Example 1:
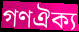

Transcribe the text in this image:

গণঐক্য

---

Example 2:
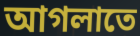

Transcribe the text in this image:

আগলাতে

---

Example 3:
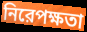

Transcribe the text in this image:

নিরেপক্ষতা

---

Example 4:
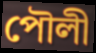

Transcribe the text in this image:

পৌলী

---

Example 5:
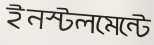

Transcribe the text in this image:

ইনস্টলমেন্টে